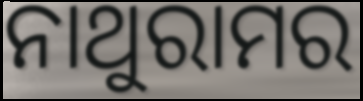
ନାଥୁରାମର